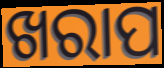
ଖରାପ